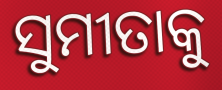
ସୁମୀତାକୁ